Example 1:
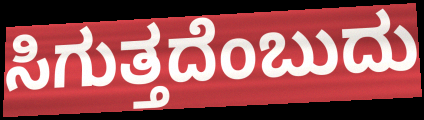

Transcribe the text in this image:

ಸಿಗುತ್ತದೆಂಬುದು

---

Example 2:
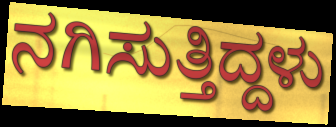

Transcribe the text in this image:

ನಗಿಸುತ್ತಿದ್ದಳು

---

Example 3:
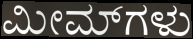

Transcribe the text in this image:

ಮೀಮ್‌ಗಳು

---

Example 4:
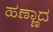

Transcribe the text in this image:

ಹಣ್ಣಾದ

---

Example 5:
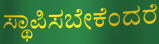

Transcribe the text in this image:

ಸ್ಥಾಪಿಸಬೇಕೆಂದರೆ